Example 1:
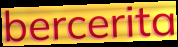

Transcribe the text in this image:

bercerita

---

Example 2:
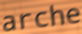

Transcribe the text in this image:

arche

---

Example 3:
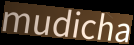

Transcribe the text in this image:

mudicha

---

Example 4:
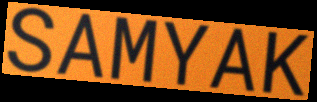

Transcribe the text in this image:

SAMYAK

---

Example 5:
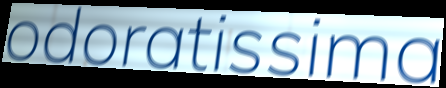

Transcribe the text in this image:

odoratissima